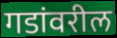
गडांवरील